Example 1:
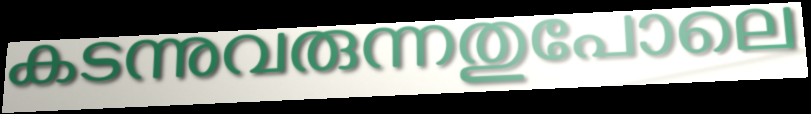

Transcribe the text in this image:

കടന്നുവരുന്നതുപോലെ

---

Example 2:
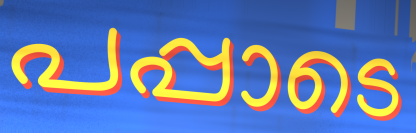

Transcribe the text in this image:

പപ്പാടെ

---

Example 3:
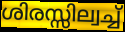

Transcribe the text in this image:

ശിരസ്സില്വച്ച്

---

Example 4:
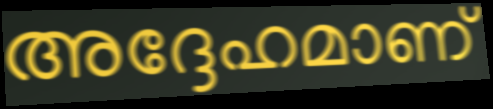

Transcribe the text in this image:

അദ്ദേഹമാണ്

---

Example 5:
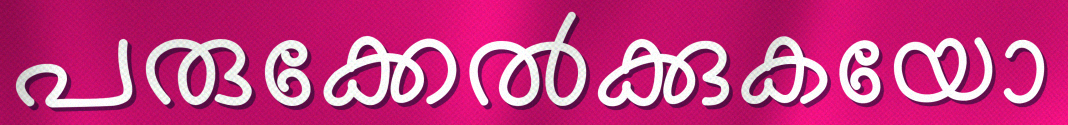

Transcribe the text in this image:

പരുക്കേൽക്കുകയോ